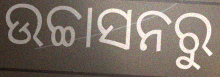
ଉଚ୍ଚାସନରୁ